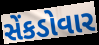
સેંકડોવાર